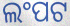
ଲଂପଟ